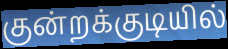
குன்றக்குடியில்